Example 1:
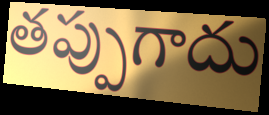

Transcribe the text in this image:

తప్పుగాదు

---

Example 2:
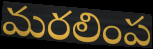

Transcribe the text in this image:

మరలింప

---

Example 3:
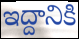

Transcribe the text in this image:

ఇద్దానికి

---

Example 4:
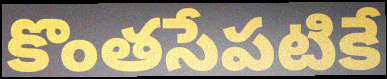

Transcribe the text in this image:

కొంతసేపటికే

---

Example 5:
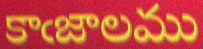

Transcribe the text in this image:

కాఁజాలము